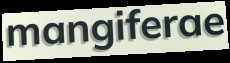
mangiferae